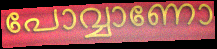
പോവ്വാണോ